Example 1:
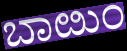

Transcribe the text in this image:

ಬಾೞುಂ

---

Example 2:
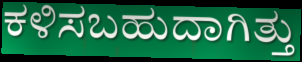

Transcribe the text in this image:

ಕಳಿಸಬಹುದಾಗಿತ್ತು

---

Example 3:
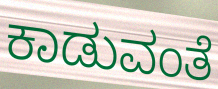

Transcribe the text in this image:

ಕಾಡುವಂತೆ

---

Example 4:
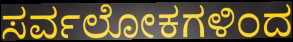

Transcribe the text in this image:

ಸರ್ವಲೋಕಗಳಿಂದ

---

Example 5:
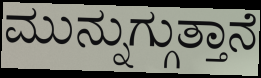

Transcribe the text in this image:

ಮುನ್ನುಗ್ಗುತ್ತಾನೆ